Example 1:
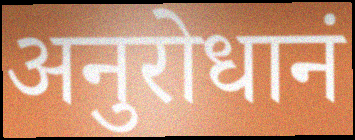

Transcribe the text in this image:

अनुरोधानं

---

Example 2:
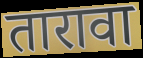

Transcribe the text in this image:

तारावा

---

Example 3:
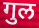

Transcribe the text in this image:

गुल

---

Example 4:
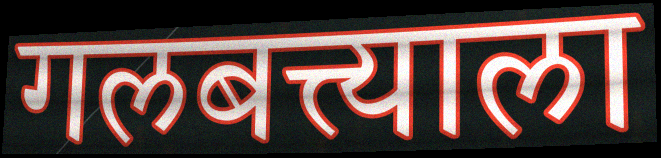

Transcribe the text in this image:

गलबत्त्याला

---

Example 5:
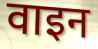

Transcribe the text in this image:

वाइन